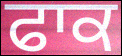
ਫਾਕ